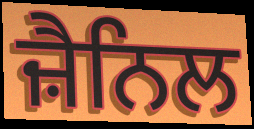
ਜ਼ੈਨਿਲ